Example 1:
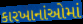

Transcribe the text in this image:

કારખાનાંઓમાં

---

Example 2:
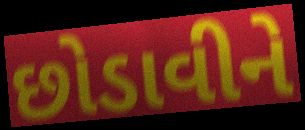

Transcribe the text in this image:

છોડાવીને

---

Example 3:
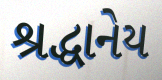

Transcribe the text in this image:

શ્રદ્ધાનેય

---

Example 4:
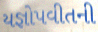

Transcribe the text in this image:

યજ્ઞોપવીતની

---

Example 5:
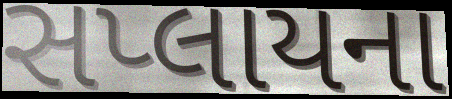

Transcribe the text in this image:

સપ્લાયના